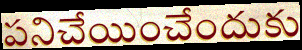
పనిచేయించేందుకు